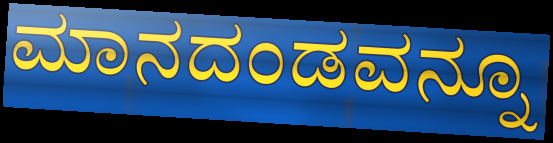
ಮಾನದಂಡವನ್ನೂ